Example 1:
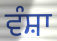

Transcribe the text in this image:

ਵੰਸ਼ਾ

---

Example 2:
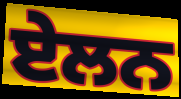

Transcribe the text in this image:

ਏਲਨ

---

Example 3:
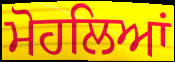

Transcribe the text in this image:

ਮੋਹਲਿਆਂ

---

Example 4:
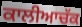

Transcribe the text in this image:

ਕਾਲੀਆਚੱਕ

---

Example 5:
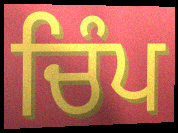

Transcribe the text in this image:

ਚਿੰਪ